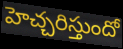
హెచ్చరిస్తుందో